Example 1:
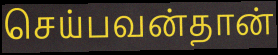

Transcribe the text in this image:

செய்பவன்தான்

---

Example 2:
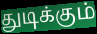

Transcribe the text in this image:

துடிக்கும்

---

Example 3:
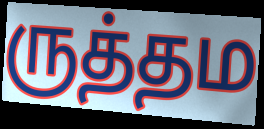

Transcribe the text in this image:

ருத்தம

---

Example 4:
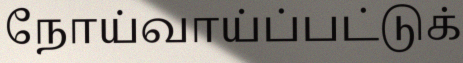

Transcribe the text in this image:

நோய்வாய்ப்பட்டுக்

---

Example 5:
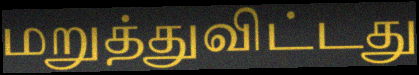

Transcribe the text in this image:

மறுத்துவிட்டது